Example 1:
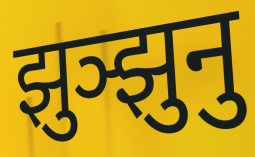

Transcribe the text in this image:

झुञ्झुनु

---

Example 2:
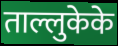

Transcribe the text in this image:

ताल्लुकेके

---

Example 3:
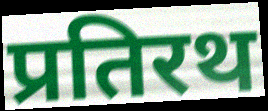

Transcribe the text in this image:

प्रतिरथ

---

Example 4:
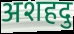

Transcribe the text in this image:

अशहदु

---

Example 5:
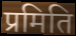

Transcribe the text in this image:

प्रमिति